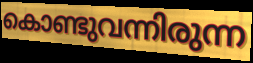
കൊണ്ടുവന്നിരുന്ന